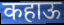
कहाऊ